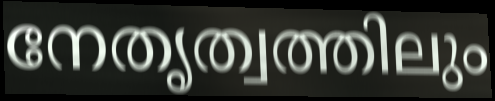
നേതൃത്വത്തിലും